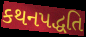
કથનપદ્ધતિ